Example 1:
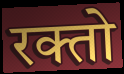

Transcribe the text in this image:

रक्तो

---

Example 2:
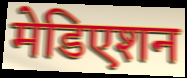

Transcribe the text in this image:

मेडिएशन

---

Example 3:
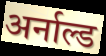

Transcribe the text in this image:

अर्नाल्ड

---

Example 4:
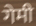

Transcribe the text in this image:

गेमी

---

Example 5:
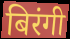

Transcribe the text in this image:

बिरंगी